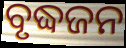
ବୃଦ୍ଧଜନ